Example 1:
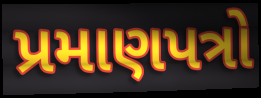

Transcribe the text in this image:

પ્રમાણપત્રો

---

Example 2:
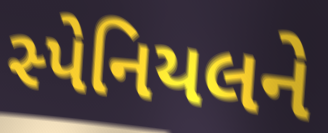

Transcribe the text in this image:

સ્પેનિયલને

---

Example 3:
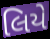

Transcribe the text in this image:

લિયે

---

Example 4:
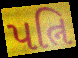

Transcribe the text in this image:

પત્નિ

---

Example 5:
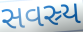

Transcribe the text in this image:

સવસ્ર્ય